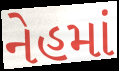
નેહમાં